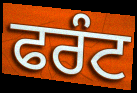
ਫਰੰਟ